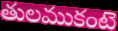
తులముకంటె